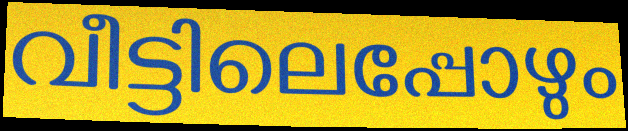
വീട്ടിലെപ്പോഴും